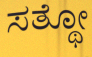
ಸತ್ಥೋ